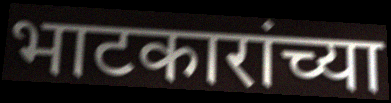
भाटकारांच्या